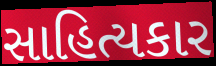
સાહિત્યકાર